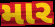
માર